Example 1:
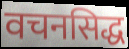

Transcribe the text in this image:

वचनसिद्ध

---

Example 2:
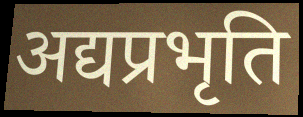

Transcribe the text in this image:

अद्यप्रभृति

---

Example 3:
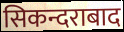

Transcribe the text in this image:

सिकन्दराबाद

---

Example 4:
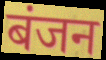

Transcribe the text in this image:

बंजन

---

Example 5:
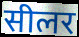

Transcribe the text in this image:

सीलर